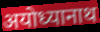
अयोध्यानाथ